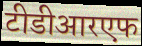
टीडीआरएफ